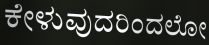
ಕೇಳುವುದರಿಂದಲೋ